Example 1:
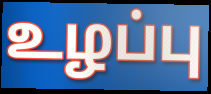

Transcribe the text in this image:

உழப்பு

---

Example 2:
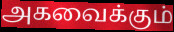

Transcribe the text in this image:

அகவைக்கும்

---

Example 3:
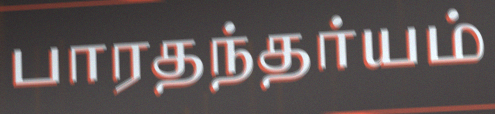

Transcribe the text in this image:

பாரதந்தர்யம்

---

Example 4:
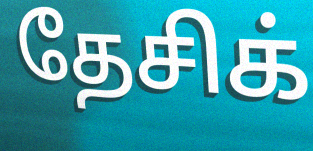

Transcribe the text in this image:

தேசிக்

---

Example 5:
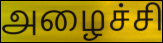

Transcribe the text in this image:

அழைச்சி